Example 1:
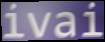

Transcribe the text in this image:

ivai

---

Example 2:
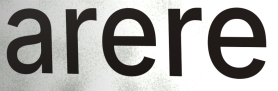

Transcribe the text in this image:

arere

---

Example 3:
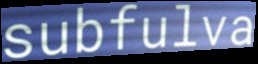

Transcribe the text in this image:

subfulva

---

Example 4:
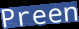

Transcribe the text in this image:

Preen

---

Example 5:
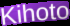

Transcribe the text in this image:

Kihoto